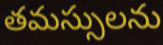
తమస్సులను